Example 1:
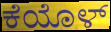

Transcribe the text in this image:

ಕೆಯೊಳ್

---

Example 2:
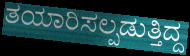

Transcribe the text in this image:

ತಯಾರಿಸಲ್ಪಡುತ್ತಿದ್ದ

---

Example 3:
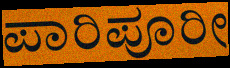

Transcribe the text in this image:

ಪಾರಿಪೂರೀ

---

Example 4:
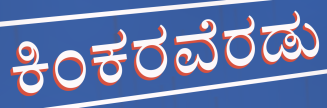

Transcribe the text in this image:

ಕಿಂಕರವೆರಡು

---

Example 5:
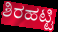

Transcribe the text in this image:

ಶಿರಹಟ್ಟಿ